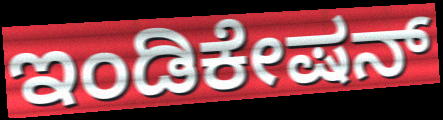
ಇಂಡಿಕೇಷನ್